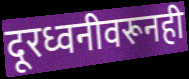
दूरध्वनीवरूनही